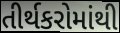
તીર્થકરોમાંથી